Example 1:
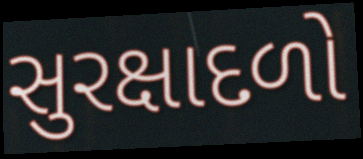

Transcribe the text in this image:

સુરક્ષાદળો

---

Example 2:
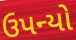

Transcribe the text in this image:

ઉપન્યો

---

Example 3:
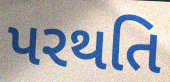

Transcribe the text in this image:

પરથતિ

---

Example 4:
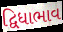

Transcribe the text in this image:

દ્વિધાભાવ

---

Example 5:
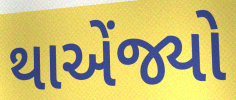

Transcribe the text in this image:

થાએંજ્યો